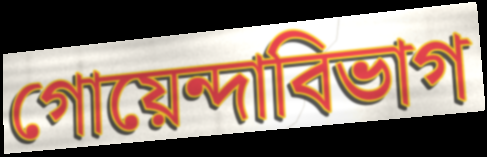
গোয়েন্দাবিভাগ